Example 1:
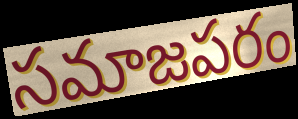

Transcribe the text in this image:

సమాజపరం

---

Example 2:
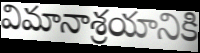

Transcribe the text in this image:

విమానాశ్రయానికి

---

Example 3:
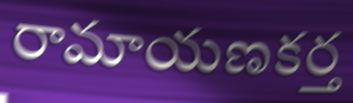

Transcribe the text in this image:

రామాయణకర్త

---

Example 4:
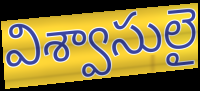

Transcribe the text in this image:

విశ్వాసులై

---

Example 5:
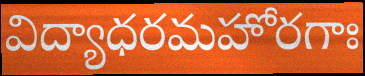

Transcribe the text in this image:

విద్యాధరమహోరగాః